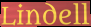
Lindell